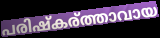
പരിഷ്കര്ത്താവായ